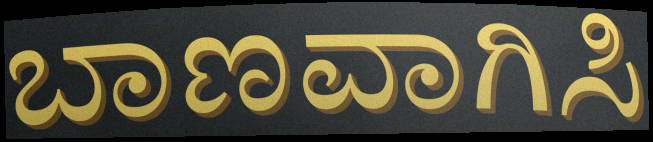
ಬಾಣವಾಗಿಸಿ